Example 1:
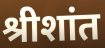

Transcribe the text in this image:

श्रीशांत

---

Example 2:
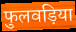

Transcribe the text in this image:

फुलवड़िया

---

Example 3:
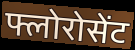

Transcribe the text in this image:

फ्लोरोसेंट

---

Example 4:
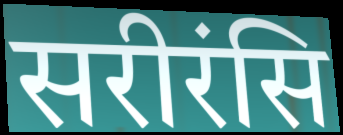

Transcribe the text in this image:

सरीरंसि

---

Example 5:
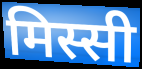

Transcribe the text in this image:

मिस्सी